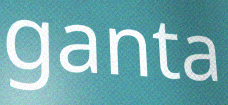
ganta